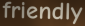
friendly